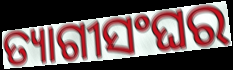
ତ୍ୟାଗୀସଂଘର